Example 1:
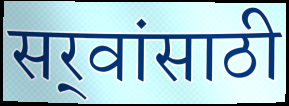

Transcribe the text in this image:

सर्वांसाठी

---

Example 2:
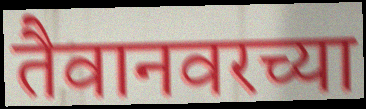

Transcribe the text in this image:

तैवानवरच्या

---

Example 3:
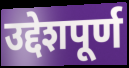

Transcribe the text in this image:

उद्देशपूर्ण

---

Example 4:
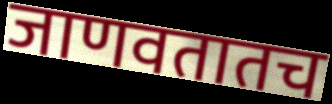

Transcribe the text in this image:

जाणवतातच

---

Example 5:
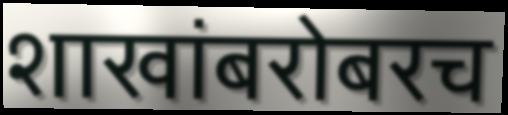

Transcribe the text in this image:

शाखांबरोबरच